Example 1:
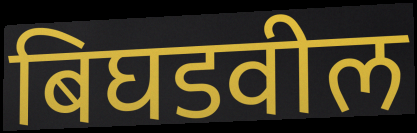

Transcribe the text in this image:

बिघडवील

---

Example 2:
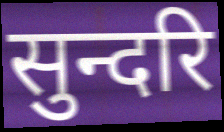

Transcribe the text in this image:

सुन्दरि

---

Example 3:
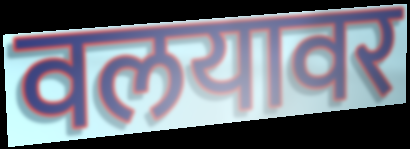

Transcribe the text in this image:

वलयावर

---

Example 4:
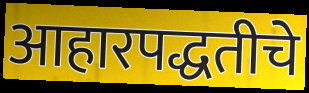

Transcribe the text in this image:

आहारपद्धतीचे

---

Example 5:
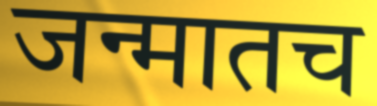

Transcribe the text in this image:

जन्मातच